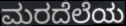
ಮರದೆಲೆಯ